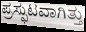
ಪ್ರಸ್ಫುಟವಾಗಿತ್ತು